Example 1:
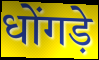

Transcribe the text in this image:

धोंगड़े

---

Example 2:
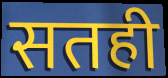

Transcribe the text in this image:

सतही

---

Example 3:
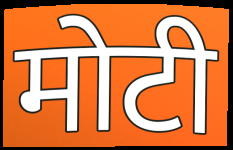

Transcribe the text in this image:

मोटी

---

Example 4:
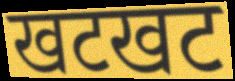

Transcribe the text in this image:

खटखट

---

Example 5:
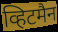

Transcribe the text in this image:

व्हिटमैन